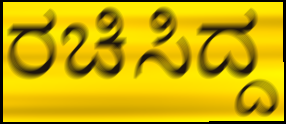
ರಚಿಸಿದ್ದ